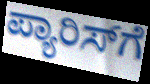
ಪ್ಯಾರಿಸ್‍ಗೆ